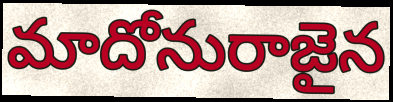
మాదోనురాజైన